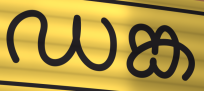
ഡങ്ക